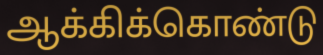
ஆக்கிக்கொண்டு